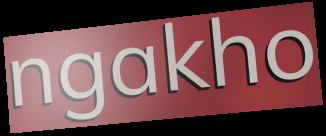
ngakho